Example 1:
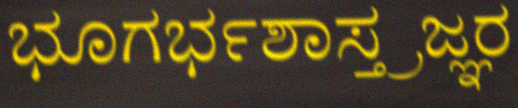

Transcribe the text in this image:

ಭೂಗರ್ಭಶಾಸ್ತ್ರಜ್ಞರ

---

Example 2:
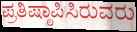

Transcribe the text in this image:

ಪ್ರತಿಷ್ಠಾಪಿಸಿರುವರು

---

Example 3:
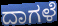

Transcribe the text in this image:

ದಾಗಳೆ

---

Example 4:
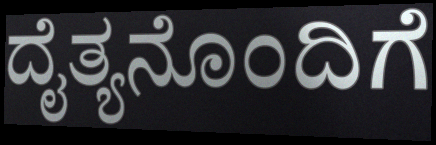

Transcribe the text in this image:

ದೈತ್ಯನೊಂದಿಗೆ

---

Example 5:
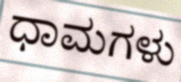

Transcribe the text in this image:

ಧಾಮಗಳು